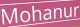
Mohanur